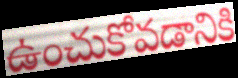
ఉంచుకోవడానికి